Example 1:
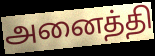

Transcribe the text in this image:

அனைத்தி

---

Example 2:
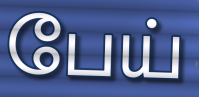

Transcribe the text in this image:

பேய்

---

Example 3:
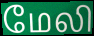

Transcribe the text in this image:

மேலி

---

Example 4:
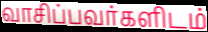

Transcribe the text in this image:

வாசிப்பவர்களிடம்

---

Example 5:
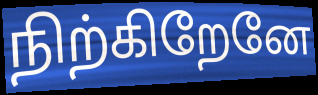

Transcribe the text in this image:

நிற்கிறேனே